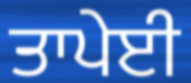
ਤਾਪੇਈ